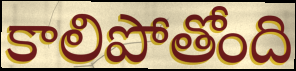
కాలిపోతోంది